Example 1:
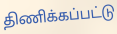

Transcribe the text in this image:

திணிக்கப்பட்டு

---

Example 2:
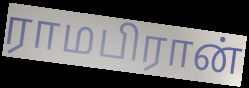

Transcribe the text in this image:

ராமபிரான்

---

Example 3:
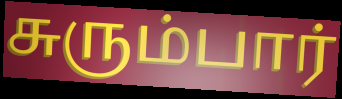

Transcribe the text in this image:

சுரும்பார்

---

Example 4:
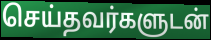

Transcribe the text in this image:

செய்தவர்களுடன்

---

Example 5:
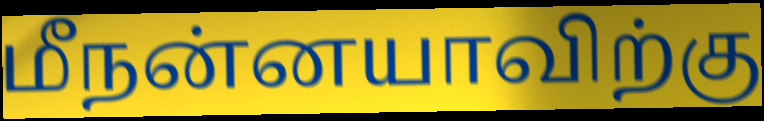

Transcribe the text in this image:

மீநன்னயாவிற்கு